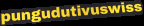
pungudutivuswiss